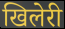
खिलेरी